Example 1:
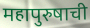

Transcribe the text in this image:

महापुरुषाची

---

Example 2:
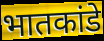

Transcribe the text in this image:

भातकांडे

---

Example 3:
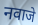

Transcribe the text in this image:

नवाजे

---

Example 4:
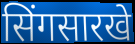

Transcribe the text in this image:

सिंगसारखे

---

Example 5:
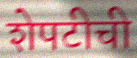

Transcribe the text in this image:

शेपटीची